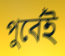
পুর্বেই